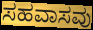
ಸಹವಾಸವು